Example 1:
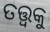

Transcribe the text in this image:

ତତ୍ତ୍ଵକୁ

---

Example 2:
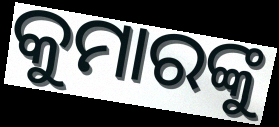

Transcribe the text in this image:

କୁମାରଙ୍କୁ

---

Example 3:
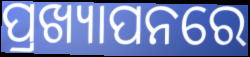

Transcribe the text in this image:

ପ୍ରଖ୍ୟାପନରେ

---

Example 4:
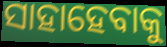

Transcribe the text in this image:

ସାହାହେବାକୁ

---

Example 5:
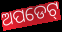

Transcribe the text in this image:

ଅପଡେଟ୍